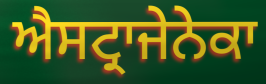
ਐਸਟ੍ਰਾਜੇਨੇਕਾ